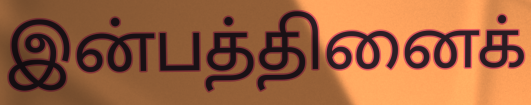
இன்பத்தினைக்